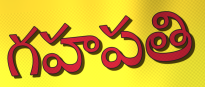
గహపతి